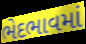
ભેદભાવમાં